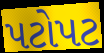
પટોપટ